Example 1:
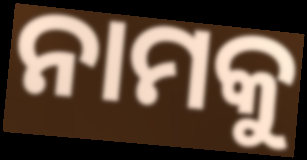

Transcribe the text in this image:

ନାମକୁ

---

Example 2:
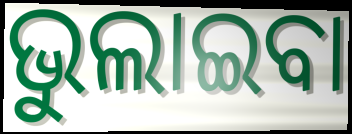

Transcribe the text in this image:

ଭୁଲାଇବା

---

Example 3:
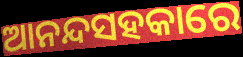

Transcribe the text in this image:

ଆନନ୍ଦସହକାରେ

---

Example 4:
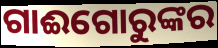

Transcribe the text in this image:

ଗାଈଗୋରୁଙ୍କର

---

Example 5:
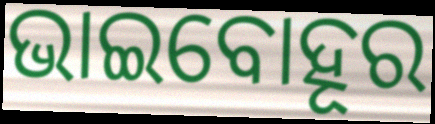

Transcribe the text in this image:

ଭାଇବୋହୂର